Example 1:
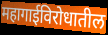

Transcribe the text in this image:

महागाईविरोधातील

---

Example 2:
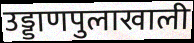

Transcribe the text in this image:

उड्डाणपुलाखाली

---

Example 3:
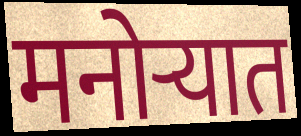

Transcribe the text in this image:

मनोऱ्यात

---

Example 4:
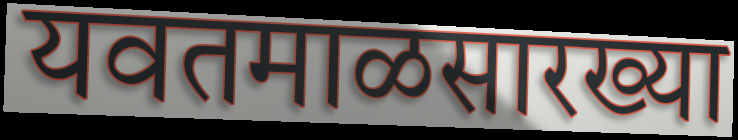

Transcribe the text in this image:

यवतमाळसारख्या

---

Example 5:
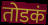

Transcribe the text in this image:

तोडकं